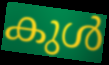
കുൾ